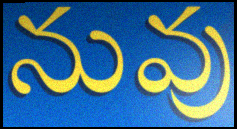
నువు